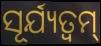
ସୂର୍ଯ୍ୟତ୍ୱମ୍